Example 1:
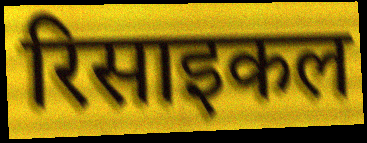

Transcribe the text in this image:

रिसाइकल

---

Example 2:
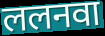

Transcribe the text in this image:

ललनवा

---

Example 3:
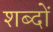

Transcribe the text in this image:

शब्दों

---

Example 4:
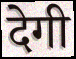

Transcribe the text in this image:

देगी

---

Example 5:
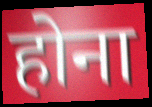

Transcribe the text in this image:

होना